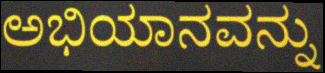
ಅಭಿಯಾನವನ್ನು